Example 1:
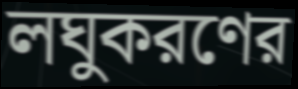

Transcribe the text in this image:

লঘুকরণের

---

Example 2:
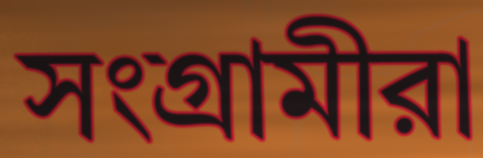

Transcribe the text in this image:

সংগ্রামীরা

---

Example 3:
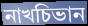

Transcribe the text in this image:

নাখচিভান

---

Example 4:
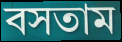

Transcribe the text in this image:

বসতাম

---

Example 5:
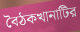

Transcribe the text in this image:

বৈঠকখানাটির